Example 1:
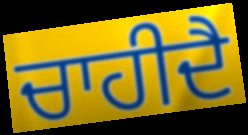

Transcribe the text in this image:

ਚਾਹੀਦੈ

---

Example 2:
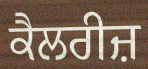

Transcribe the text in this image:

ਕੈਲਰੀਜ਼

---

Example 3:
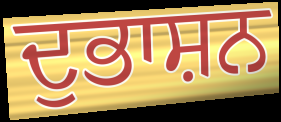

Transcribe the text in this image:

ਦੁਭਾਸ਼ਨ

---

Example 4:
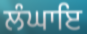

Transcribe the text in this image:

ਲੰਘਾਇ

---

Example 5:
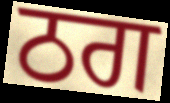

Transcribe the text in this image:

ਠਗ